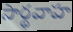
సార్థవాహ